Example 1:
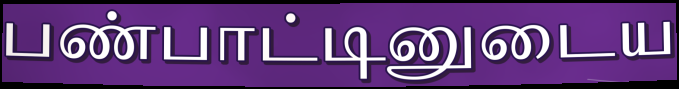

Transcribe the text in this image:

பண்பாட்டினுடைய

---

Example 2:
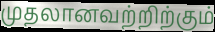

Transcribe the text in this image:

முதலானவற்றிற்கும்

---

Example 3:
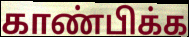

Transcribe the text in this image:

காண்பிக்க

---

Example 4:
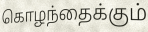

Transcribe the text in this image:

கொழந்தைக்கும்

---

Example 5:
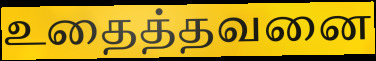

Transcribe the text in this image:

உதைத்தவனை